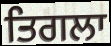
ਤਿਗਲਾ